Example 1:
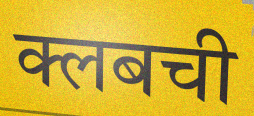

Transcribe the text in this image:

क्लबची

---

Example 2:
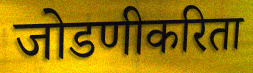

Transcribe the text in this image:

जोडणीकरिता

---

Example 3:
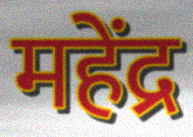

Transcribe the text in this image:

महेंद्र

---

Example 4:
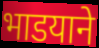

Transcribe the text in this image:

भाडयाने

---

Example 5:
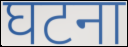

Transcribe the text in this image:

घटना